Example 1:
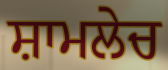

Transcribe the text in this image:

ਸ਼ਾਮਲੇਚ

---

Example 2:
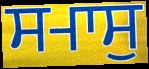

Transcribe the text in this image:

ਸ੍ਮਾਸੁ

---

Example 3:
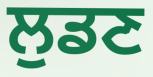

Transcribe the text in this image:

ਲੁਡਣ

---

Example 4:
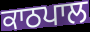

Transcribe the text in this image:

ਕਾਠਪਾਲ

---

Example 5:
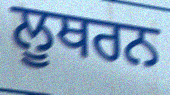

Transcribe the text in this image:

ਲੂਥਰਨ